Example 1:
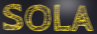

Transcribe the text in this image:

SOLA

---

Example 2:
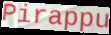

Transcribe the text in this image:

Pirappu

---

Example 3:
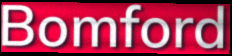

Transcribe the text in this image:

Bomford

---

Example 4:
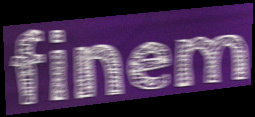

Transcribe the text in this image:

finem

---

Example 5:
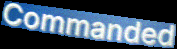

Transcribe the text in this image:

Commanded